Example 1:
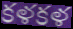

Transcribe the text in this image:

కళకళ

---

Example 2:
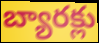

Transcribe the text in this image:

బ్యారక్లు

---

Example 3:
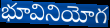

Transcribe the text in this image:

భూవినియోగ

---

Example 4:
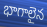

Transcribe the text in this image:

భాగాలైన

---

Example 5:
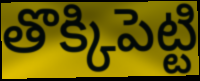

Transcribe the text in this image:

తొక్కిపెట్టి